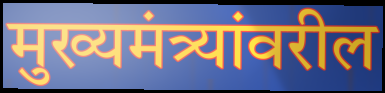
मुख्यमंत्र्यांवरील